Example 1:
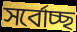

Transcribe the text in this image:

সৰ্বোচ্ছ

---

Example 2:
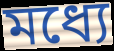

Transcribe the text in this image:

মধ্যে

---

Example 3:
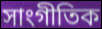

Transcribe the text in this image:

সাংগীতিক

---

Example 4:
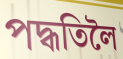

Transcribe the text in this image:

পদ্ধতিলৈ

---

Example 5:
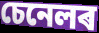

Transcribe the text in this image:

চেনেলৰ